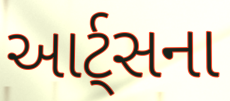
આર્ટ્સના